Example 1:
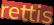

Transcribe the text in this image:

rettis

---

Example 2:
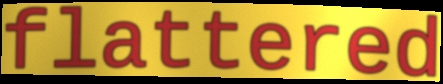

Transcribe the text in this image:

flattered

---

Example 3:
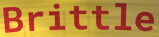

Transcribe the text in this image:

Brittle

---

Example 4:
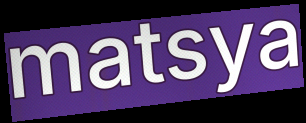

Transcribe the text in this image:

matsya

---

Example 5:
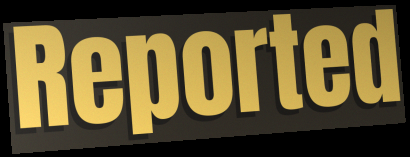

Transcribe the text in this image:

Reported